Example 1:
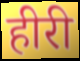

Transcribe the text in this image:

हीरी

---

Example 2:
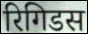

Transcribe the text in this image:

रिगिडस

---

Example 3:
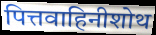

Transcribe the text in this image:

पित्तवाहिनीशोथ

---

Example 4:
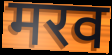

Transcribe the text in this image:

मरव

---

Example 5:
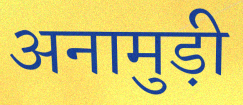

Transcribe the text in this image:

अनामुड़ी